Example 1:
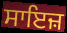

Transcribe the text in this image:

ਸਾਇਜ਼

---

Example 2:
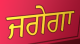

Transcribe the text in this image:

ਜਗੇਗਾ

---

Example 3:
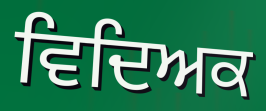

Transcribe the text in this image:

ਵਿਦਿਅਕ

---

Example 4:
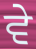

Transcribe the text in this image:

ਵੇ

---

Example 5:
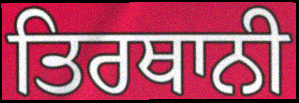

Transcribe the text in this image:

ਤਿਰਥਾਨੀ